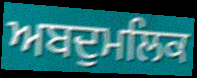
ਅਬਦੁਮਲਿਕ